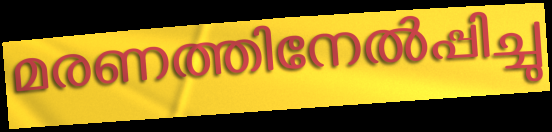
മരണത്തിനേൽപ്പിച്ചു